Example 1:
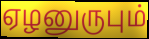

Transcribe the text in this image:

ஏழனுருபும்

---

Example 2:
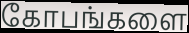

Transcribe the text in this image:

கோபங்களை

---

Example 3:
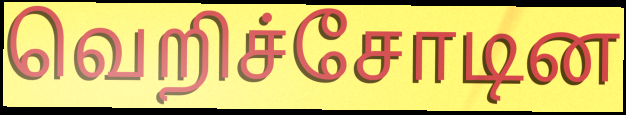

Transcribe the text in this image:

வெறிச்சோடின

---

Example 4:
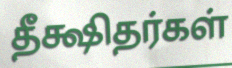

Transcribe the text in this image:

தீக்ஷிதர்கள்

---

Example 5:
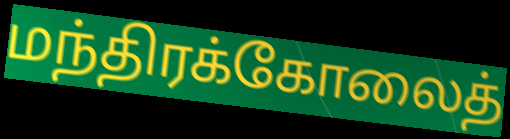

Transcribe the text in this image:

மந்திரக்கோலைத்